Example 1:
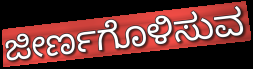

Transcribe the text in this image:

ಜೀರ್ಣಗೊಳಿಸುವ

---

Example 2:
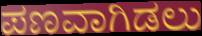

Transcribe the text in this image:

ಪಣವಾಗಿಡಲು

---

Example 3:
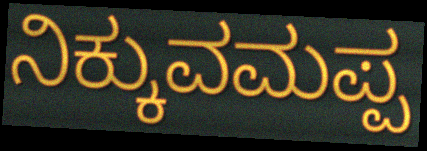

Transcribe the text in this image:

ನಿಕ್ಕುವಮಪ್ಪ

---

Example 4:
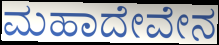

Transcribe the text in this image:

ಮಹಾದೇವೇನ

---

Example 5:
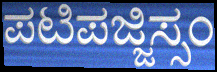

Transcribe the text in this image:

ಪಟಿಪಜ್ಜಿಸ್ಸಂ